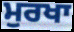
ਮੁਰਖਾ